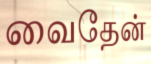
வைதேன்